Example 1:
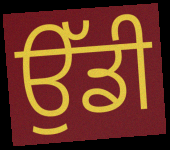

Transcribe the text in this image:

ਉੱਡੀ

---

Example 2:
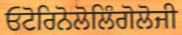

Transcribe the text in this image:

ਓਟੋਰਿਨੋਲੋਲਿੰਗੋਲੋਜੀ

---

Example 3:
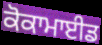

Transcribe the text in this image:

ਕੋਕਾਮਾਈਡ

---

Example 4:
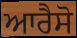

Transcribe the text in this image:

ਆਰੈਸੋ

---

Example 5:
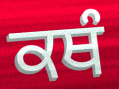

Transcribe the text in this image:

ਕਥੰ